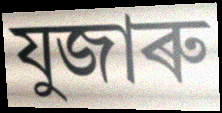
যুজাৰু